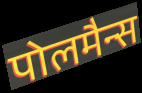
पोलमैन्स